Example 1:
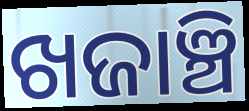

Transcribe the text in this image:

ଖଜାଞ୍ଚି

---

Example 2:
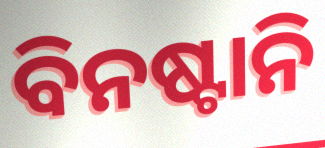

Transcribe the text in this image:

ବିନଷ୍ଟାନି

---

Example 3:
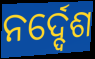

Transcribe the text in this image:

ନର୍ଦ୍ଦେଶ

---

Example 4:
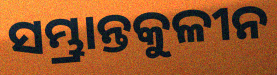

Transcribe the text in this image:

ସମ୍ଭ୍ରାନ୍ତକୁଳୀନ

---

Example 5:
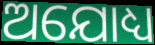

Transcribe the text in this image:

ଅଯୋଧ୍ୟ